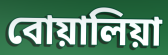
বোয়ালিয়া